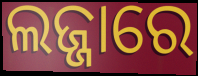
ଲଜ୍ଜାରେ